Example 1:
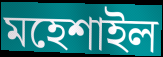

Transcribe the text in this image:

মহেশাইল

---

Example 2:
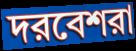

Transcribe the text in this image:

দরবেশরা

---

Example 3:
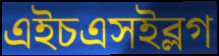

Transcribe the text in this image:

এইচএসইব্লগ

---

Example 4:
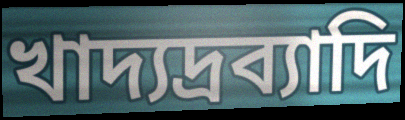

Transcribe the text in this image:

খাদ্যদ্রব্যাদি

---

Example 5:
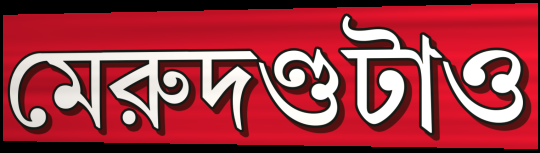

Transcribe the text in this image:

মেরুদণ্ডটাও